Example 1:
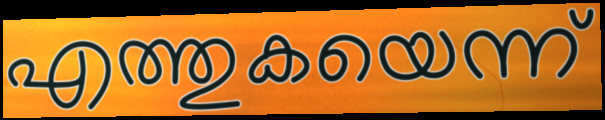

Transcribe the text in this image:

എത്തുകയെന്ന്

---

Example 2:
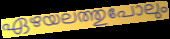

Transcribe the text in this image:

ഏഴയലത്തുപോലും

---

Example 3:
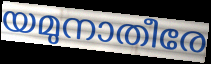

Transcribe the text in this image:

യമുനാതീരേ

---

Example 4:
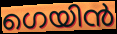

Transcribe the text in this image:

ഗെയിൻ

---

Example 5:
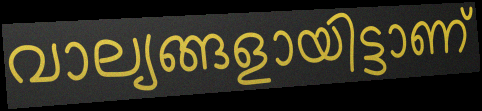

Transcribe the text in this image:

വാല്യങ്ങളായിട്ടാണ്